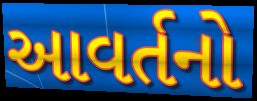
આવર્તનો